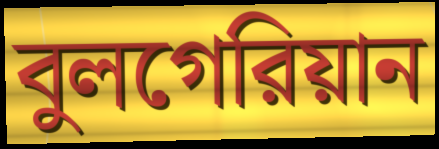
বুলগেরিয়ান